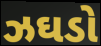
ઝઘડો